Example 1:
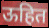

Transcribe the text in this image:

ऊहित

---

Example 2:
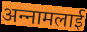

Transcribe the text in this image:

अन्‍नामलाई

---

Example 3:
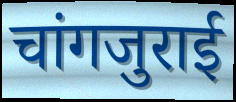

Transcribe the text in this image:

चांगजुराई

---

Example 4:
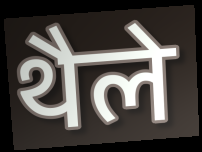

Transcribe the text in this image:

थैले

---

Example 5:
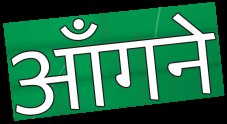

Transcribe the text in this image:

आँगने